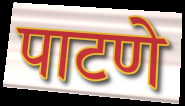
पाटणे